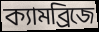
ক্যামব্রিজে